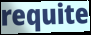
requite